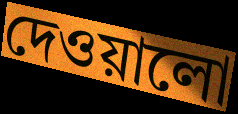
দেওয়ালো